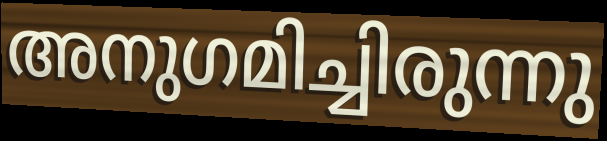
അനുഗമിച്ചിരുന്നു